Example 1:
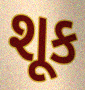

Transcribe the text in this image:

શૂક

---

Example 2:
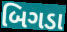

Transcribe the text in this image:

બિગડા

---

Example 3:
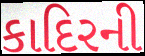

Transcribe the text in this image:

કાદિરની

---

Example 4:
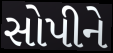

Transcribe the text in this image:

સોપીને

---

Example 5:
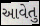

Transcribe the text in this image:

આવેતુ